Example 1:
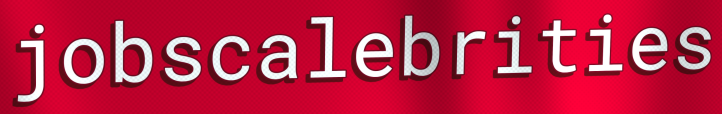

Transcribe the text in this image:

jobscalebrities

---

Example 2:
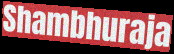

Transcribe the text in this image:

Shambhuraja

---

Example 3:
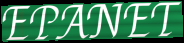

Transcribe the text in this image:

EPANET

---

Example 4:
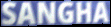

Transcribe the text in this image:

SANGHA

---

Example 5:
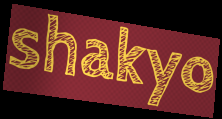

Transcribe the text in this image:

shakyo